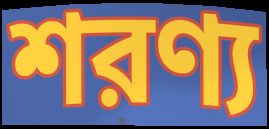
শরণ্য